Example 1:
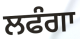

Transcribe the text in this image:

ਲਫੰਗਾ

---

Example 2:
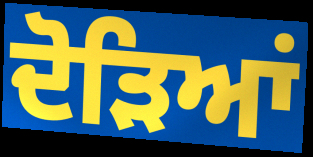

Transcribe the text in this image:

ਦੋੜਿਆਂ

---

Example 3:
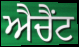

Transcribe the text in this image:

ਐਚੈਂਟ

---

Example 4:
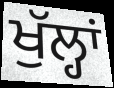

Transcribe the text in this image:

ਖੁੱਲ੍ਹਾਂ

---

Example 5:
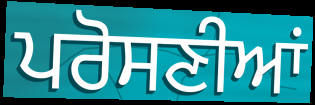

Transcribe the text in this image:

ਪਰੋਸਣੀਆਂ